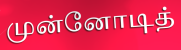
முன்னோடித்